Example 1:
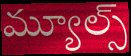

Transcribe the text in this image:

మ్యూల్స్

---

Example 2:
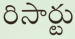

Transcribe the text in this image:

రిసార్టు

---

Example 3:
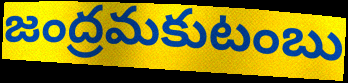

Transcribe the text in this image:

జంద్రమకుటంబు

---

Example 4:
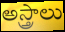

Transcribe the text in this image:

అస్త్రాలు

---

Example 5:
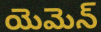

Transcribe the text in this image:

యెమెన్